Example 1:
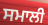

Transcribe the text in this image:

ਸਮਾਲੀ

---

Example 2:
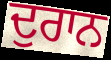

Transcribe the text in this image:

ਦੁਰਾਨ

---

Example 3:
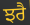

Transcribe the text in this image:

ਝਰੈ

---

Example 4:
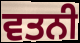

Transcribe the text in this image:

ਵਤਨੀ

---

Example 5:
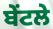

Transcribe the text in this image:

ਬੇਂਟਲੇ